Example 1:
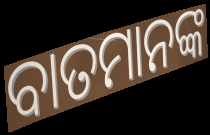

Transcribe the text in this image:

ବାତମାନଙ୍କ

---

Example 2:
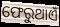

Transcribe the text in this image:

ଫେରୁଥାଏଁ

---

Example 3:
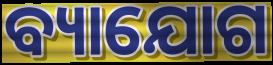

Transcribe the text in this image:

ବ୍ୟାଯୋଗ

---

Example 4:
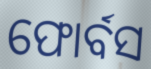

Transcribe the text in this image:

ଫୋର୍ବସ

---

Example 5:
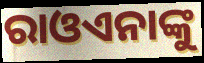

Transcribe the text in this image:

ରାଓଏନାଙ୍କୁ